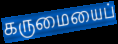
கருமையைப்